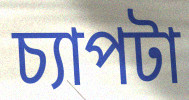
চ্যাপটা